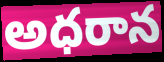
అధరాన